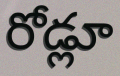
రోడ్లూ